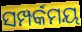
ସମ୍ପର୍କମୟ